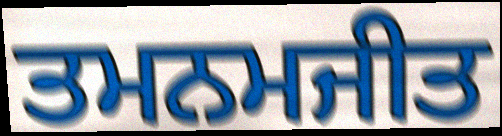
ਤਮਨਮਜੀਤ